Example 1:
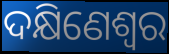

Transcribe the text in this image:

ଦକ୍ଷିଣେଶ୍ୱର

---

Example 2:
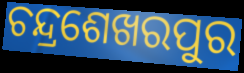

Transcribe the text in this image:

ଚନ୍ଦ୍ରଶେଖରପୁର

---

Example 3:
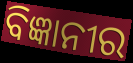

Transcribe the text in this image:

ବିଜ୍ଞାନୀର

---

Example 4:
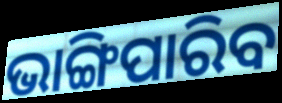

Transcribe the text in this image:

ଭାଙ୍ଗିପାରିବ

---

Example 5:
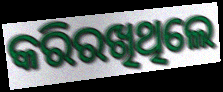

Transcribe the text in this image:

କରିରଖିଥିଲେ